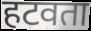
हटवता